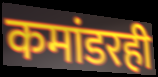
कमांडरही